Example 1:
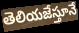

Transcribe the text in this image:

తెలియజేస్తూనే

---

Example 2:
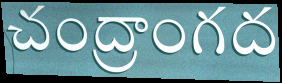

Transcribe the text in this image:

చంద్రాంగద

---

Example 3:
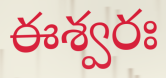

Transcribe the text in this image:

ఈశ్వరః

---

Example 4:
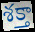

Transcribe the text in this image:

శక్తా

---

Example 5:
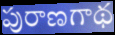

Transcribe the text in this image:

పురాణగాథ